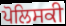
ਪੋਲਿਸਕੀ